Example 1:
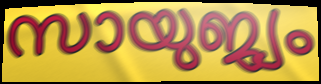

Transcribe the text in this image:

സായുജ്യം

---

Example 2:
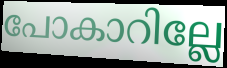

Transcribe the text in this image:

പോകാറില്ലേ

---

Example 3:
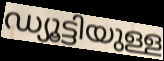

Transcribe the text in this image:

ഡ്യൂട്ടിയുള്ള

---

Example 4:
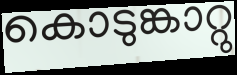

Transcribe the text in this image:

കൊടുങ്കാറ്റു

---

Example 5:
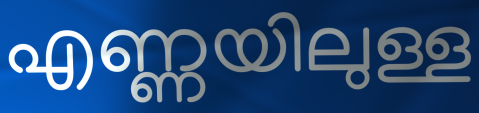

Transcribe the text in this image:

എണ്ണയിലുള്ള